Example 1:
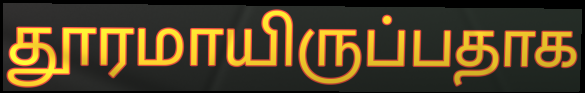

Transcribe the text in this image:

தூரமாயிருப்பதாக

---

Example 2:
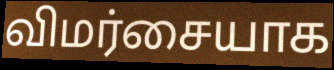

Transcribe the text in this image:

விமர்சையாக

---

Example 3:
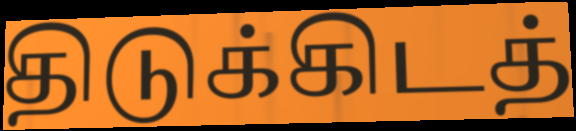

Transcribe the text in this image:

திடுக்கிடத்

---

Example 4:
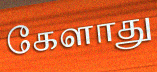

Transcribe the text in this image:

கேளாது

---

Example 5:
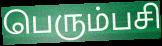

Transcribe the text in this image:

பெரும்பசி